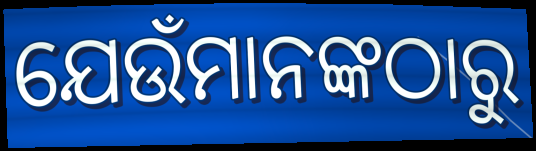
ଯେଉଁମାନଙ୍କଠାରୁ